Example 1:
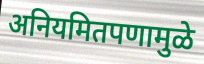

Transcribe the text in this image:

अनियमितपणामुळे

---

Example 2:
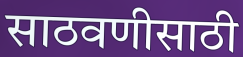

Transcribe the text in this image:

साठवणीसाठी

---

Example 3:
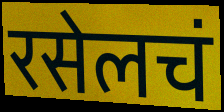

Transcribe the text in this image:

रसेलचं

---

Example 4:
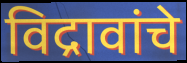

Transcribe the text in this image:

विद्रावांचे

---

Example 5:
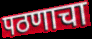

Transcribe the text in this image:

पठणाचा